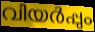
വിയർപ്പും